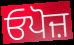
ਓਪੋਜ਼